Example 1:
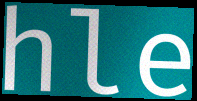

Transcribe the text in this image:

hle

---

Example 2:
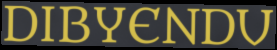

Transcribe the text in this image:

DIBYENDU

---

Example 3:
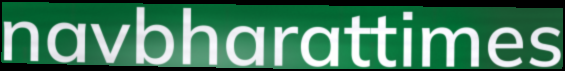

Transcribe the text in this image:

navbharattimes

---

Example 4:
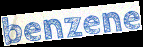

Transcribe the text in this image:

benzene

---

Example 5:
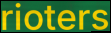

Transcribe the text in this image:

rioters